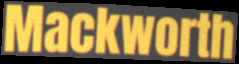
Mackworth